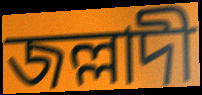
জল্লাদী